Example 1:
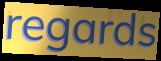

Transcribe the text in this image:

regards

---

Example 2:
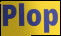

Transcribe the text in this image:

Plop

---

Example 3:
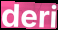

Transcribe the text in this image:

deri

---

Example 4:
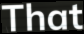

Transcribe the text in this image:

That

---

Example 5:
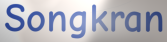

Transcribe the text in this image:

Songkran